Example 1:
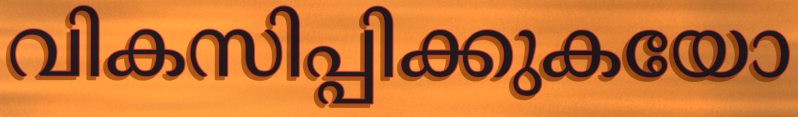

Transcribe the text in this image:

വികസിപ്പിക്കുകയോ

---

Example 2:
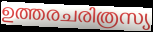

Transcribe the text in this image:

ഉത്തരചരിത്രസ്യ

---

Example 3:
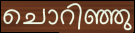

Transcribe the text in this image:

ചൊറിഞ്ഞു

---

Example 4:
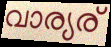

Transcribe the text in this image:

വാര്യര്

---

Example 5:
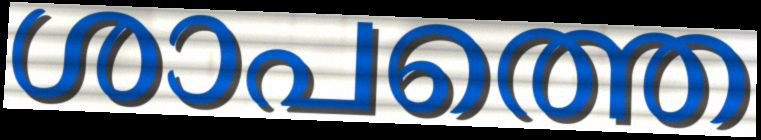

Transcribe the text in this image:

ശാപത്തെ